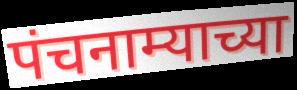
पंचनाम्याच्या